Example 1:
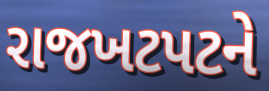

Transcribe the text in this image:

રાજખટપટને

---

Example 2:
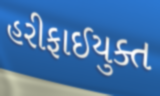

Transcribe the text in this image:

હરીફાઈયુક્ત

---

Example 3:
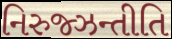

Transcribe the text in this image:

નિરુજ્ઝન્તીતિ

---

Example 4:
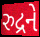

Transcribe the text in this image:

રુદ્રને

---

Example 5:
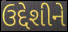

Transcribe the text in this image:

ઉદ્દેશીને